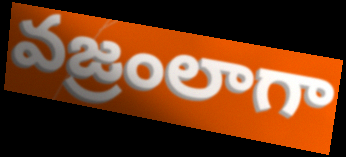
వజ్రంలాగా